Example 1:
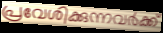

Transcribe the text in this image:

പ്രവേശിക്കുന്നവർക്ക്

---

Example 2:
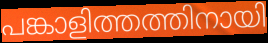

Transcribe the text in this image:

പങ്കാളിത്തത്തിനായി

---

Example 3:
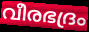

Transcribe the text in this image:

വീരഭദ്രം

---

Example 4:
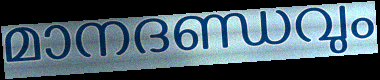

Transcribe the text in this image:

മാനദണ്ഡവും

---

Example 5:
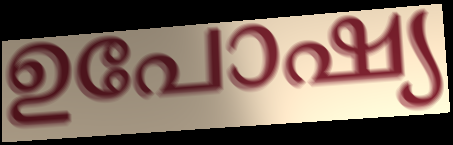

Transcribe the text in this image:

ഉപോഷ്യ